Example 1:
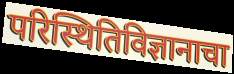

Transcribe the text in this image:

परिस्थितिविज्ञानाचा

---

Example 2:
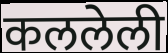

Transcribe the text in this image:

कललेली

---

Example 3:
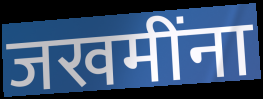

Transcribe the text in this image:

जखमींना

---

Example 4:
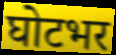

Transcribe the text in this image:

घोटभर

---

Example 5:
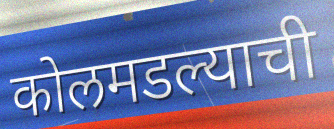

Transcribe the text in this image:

कोलमडल्याची